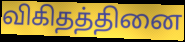
விகிதத்தினை